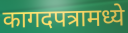
कागदपत्रामध्ये